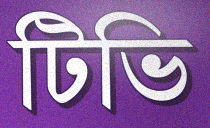
টিভি